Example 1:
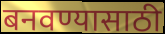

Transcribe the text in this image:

बनवण्यासाठी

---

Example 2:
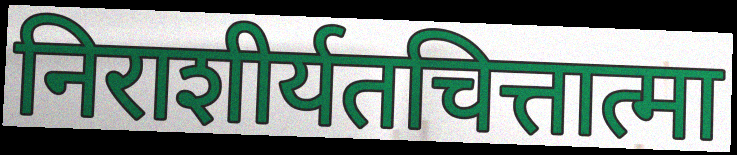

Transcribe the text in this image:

निराशीर्यतचित्तात्मा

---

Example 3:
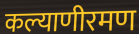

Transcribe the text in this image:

कल्याणीरमण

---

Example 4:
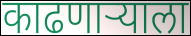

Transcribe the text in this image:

काढणार्‍याला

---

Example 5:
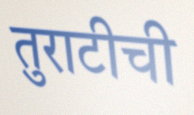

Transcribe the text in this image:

तुराटीची